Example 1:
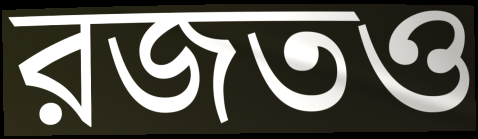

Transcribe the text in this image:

রজতও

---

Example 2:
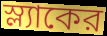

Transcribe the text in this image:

স্ল্যাকের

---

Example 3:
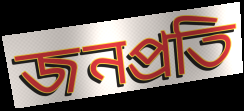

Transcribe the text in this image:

জনপ্রতি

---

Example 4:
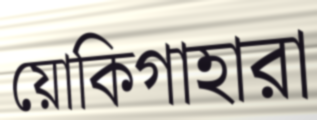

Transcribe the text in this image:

য়োকিগাহারা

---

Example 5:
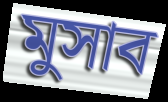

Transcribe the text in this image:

মুসাব